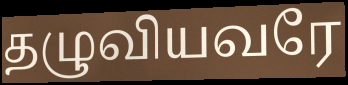
தழுவியவரே